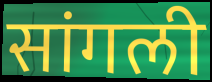
सांगली